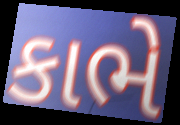
કાભે